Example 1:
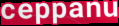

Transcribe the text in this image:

ceppanu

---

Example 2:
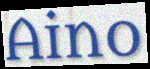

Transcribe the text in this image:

Aino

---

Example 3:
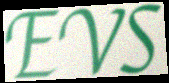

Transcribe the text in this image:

EVS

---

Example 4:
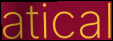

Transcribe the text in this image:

atical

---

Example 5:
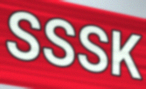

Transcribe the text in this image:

SSSK